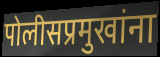
पोलीसप्रमुखांना